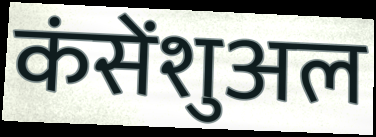
कंसेंशुअल